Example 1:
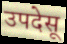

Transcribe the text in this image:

उपदेसू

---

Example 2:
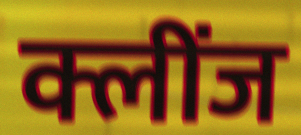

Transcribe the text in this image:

क्लींज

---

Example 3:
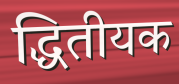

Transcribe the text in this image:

द्धितीयक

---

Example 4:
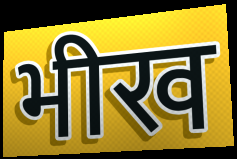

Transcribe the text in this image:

भीख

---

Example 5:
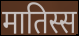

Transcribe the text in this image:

मातिस्स